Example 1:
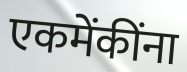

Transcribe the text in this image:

एकमेंकींना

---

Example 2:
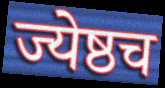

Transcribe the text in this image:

ज्येष्ठच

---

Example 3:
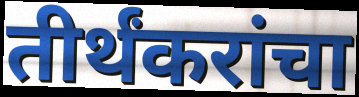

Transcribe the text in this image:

तीर्थंकरांचा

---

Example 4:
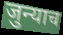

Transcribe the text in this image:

जुन्याच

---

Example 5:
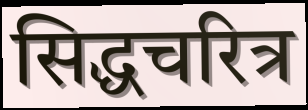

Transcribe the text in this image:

सिद्धचरित्र